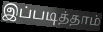
இப்படித்தாம்